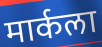
मार्कला